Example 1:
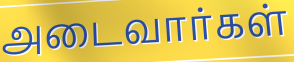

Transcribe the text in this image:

அடைவார்கள்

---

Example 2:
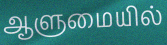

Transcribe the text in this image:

ஆளுமையில்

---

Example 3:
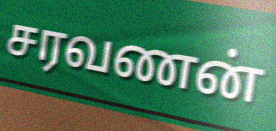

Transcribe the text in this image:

சரவணன்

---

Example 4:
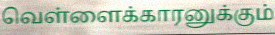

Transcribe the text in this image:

வெள்ளைக்காரனுக்கும்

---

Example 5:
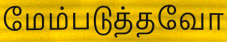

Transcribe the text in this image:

மேம்படுத்தவோ